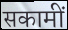
सकामीं